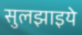
सुलझाइये